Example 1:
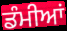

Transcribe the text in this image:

ਡੰਮੀਆਂ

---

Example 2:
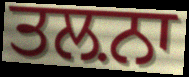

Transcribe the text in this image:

ਤਲ਼ਨਾ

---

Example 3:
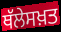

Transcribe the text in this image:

ਥੱਲੇਸਖ਼ਤ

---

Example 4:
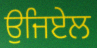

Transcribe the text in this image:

ਉਜਿਏਲ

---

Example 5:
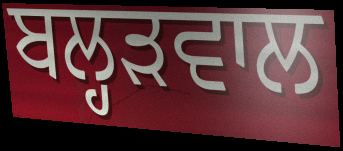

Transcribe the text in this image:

ਬਲ੍ਹੜਵਾਲ